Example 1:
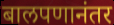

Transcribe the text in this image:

बालपणानंतर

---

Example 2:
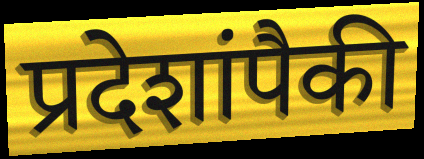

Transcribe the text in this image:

प्रदेशांपैकी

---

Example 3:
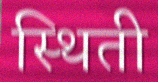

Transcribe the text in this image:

स्थिती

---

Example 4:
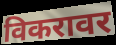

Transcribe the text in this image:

विकरावर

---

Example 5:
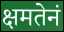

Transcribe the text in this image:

क्षमतेनं